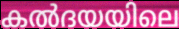
കൽദയയിലെ